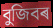
বুজিবৰ